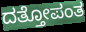
ದತ್ತೋಪಂತ